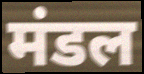
मंडल